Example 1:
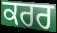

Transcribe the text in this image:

ਕਰਰ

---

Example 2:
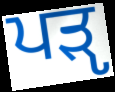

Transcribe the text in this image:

ਪੜੵ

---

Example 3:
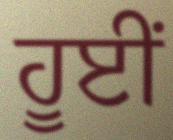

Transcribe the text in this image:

ਹੂਈਂ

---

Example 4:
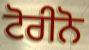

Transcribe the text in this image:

ਟੋਰੀਨੋ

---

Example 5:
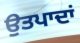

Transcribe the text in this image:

ਉਤਪਾਦਾਂ